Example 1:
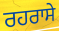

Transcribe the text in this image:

ਰਹਰਾਸੇ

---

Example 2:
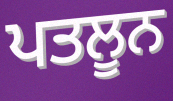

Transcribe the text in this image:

ਪਤਲੂਨ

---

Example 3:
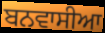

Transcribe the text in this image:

ਬਨਵਾਸੀਆ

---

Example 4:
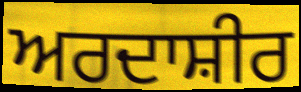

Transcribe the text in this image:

ਅਰਦਾਸ਼ੀਰ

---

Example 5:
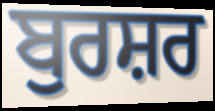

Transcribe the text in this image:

ਬੁਰਸ਼ਰ